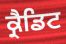
ਕ੍ਰੈਡਿਟ